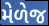
મેળેજ